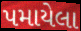
પમાયેલા